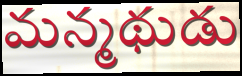
మన్మథుడు